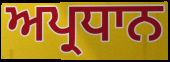
ਅਪ੍ਰਧਾਨ